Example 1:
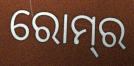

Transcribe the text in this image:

ରୋମ୍‌ର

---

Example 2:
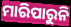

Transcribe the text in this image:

ମାରିପାରୁନି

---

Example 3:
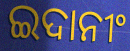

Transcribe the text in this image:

ଇଦାନୀଂ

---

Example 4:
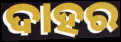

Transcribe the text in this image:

ଦାହର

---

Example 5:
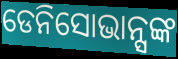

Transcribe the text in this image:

ଡେନିସୋଭାନ୍ସଙ୍କ